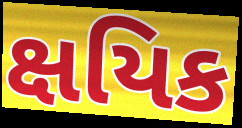
ક્ષયિક